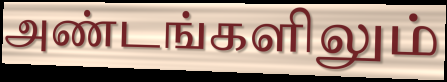
அண்டங்களிலும்